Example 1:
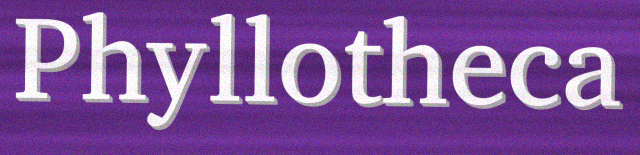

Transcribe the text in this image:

Phyllotheca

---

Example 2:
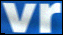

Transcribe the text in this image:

vr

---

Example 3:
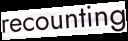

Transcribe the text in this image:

recounting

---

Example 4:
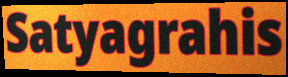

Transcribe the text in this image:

Satyagrahis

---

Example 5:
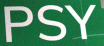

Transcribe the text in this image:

PSY